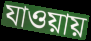
যাওয়ায়